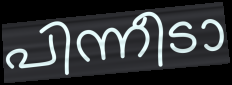
പിന്നീടാ